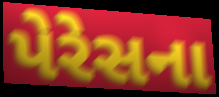
પેરેસના